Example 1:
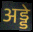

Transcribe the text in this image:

अड्डे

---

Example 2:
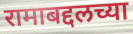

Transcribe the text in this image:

रामाबद्दलच्या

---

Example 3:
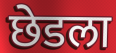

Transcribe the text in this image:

छेडला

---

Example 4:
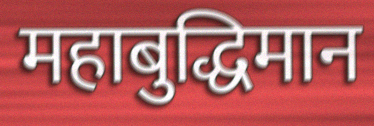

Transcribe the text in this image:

महाबुद्धिमान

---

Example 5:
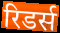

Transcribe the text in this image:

रिडर्स